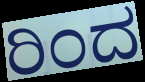
ರಿಂದ